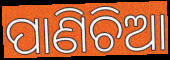
ପାଣିଚିଆ